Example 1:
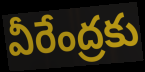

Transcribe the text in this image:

వీరేంద్రకు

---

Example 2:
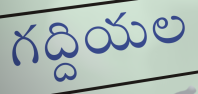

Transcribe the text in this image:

గద్దియల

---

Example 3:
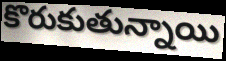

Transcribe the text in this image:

కొరుకుతున్నాయి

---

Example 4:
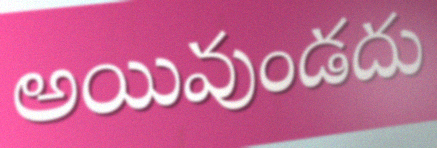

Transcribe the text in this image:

అయివుండదు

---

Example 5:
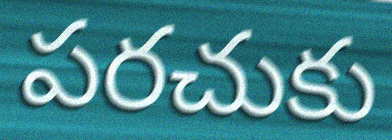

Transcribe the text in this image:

పరచుకు